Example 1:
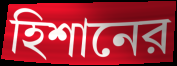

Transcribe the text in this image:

হিশানের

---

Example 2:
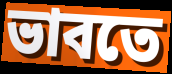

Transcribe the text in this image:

ভাবতে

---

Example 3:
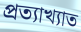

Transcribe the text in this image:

প্রত্যাখ্যাত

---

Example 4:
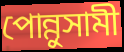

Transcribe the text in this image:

পোন্নুসামী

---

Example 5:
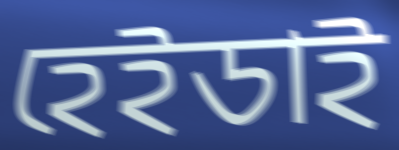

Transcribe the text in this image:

হেইডাই